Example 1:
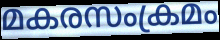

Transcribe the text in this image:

മകരസംക്രമം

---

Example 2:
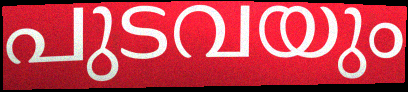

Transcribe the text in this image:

പുടവയും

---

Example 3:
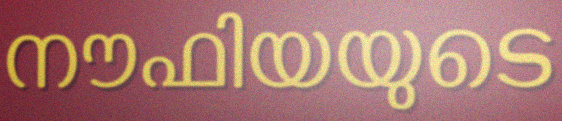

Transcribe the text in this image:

നൗഫിയയുടെ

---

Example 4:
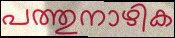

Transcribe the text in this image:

പത്തുനാഴിക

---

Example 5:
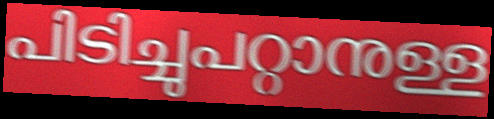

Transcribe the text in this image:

പിടിച്ചുപറ്റാനുള്ള